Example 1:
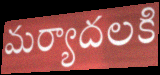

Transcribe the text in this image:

మర్యాదలకి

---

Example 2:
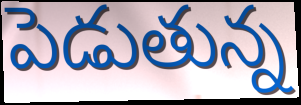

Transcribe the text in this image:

పెడుతున్న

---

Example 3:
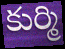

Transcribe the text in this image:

కుర్మి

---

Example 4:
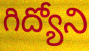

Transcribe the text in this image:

గిద్యోని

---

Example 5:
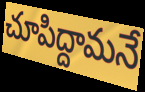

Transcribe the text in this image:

చూపిద్దామనే